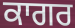
ਕਾਗਰ